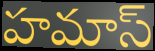
హమాస్